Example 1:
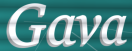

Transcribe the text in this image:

Gava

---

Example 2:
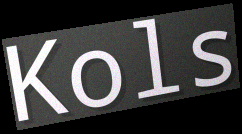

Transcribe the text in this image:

Kols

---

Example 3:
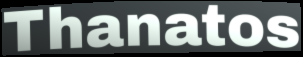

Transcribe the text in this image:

Thanatos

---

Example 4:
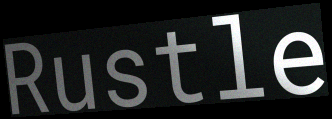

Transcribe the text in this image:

Rustle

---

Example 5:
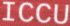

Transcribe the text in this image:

ICCU